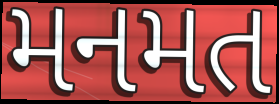
મનમત